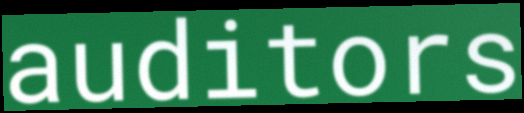
auditors